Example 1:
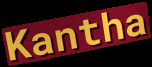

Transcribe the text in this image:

Kantha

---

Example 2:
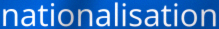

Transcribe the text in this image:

nationalisation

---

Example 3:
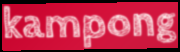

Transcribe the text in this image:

kampong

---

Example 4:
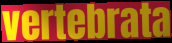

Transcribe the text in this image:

vertebrata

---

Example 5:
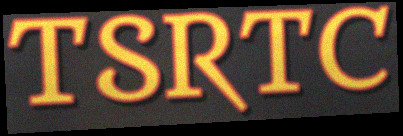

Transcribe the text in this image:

TSRTC